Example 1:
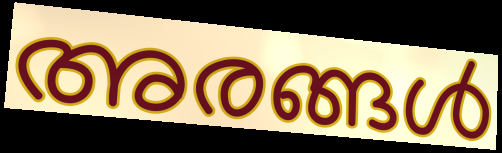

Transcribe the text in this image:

അരങ്ങൾ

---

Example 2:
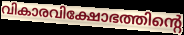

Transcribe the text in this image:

വികാരവിക്ഷോഭത്തിന്റെ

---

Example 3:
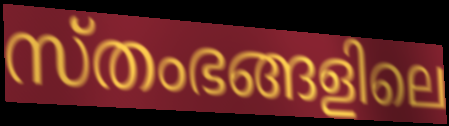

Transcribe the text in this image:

സ്തംഭങ്ങളിലെ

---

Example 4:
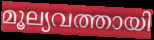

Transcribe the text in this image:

മൂല്യവത്തായി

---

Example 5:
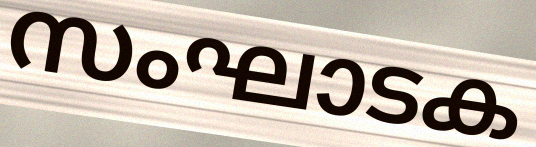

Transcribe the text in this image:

സംഘാടക